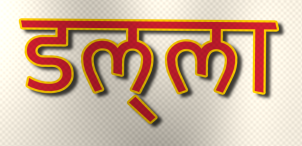
डल्ला